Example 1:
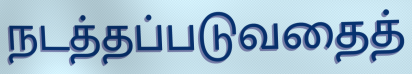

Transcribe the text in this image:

நடத்தப்படுவதைத்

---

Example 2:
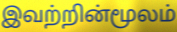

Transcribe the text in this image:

இவற்றின்மூலம்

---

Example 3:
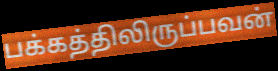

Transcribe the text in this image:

பக்கத்திலிருப்பவன்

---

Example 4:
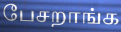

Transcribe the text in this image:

பேசறாங்க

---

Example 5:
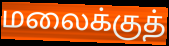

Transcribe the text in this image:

மலைக்குத்